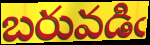
బరువడిఁ